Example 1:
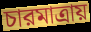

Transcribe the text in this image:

চারমাত্রায়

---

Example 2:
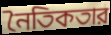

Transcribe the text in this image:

নৈতিকতার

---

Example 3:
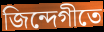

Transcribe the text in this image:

জিন্দেগীতে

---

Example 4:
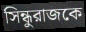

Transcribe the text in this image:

সিন্ধুরাজকে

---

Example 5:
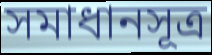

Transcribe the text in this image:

সমাধানসূত্র